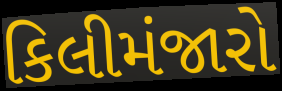
કિલીમંજારો